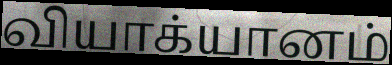
வியாக்யானம்